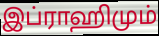
இப்ராஹிமும்